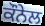
ਕੌਨੇਲ